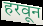
हरवून